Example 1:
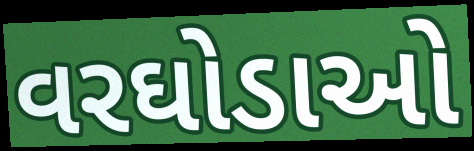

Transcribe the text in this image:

વરઘોડાઓ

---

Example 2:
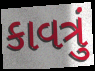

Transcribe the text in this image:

કાવત્રું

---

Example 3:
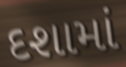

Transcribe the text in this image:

દશામાં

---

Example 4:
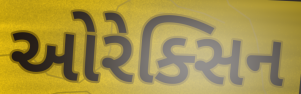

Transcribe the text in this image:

ઓરેક્સિન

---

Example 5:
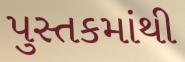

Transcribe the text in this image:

પુસ્તકમાંથી